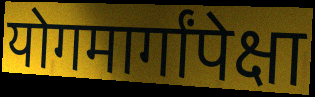
योगमार्गांपेक्षा